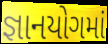
જ્ઞાનયોગમાં